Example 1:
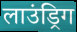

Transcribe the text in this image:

लाउंड्रिग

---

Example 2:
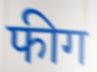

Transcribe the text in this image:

फीग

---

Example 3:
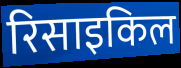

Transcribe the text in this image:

रिसाइकिल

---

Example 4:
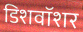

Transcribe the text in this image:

डिशवॉशर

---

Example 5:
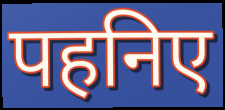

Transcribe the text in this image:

पहनिए